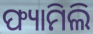
ଫ୍ୟାମିଲି